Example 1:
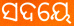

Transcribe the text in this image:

ସଦୟେ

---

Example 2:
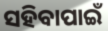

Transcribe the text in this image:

ସହିବାପାଇଁ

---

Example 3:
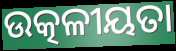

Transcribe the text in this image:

ଉତ୍କଳୀୟତା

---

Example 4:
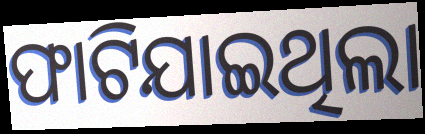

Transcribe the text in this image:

ଫାଟିଯାଇଥିଲା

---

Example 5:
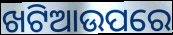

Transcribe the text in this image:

ଖଟିଆଉପରେ